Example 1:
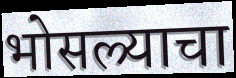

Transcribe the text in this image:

भोसल्याचा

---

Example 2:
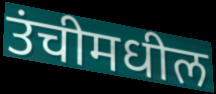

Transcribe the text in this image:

उंचीमधील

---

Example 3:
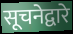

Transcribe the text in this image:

सूचनेद्वारे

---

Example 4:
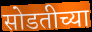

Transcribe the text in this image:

सोडतीच्या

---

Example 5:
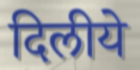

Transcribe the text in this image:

दिलीये